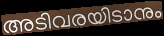
അടിവരയിടാനും